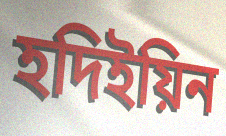
হদিইয়িন